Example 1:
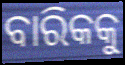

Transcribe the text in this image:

ବାରିକକୁ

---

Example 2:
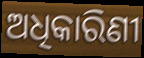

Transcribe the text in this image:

ଅଧିକାରିଣୀ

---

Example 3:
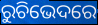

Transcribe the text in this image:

ରୁଚିଭେଦରେ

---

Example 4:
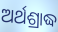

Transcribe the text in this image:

ଅର୍ଥଶ୍ରାଦ୍ଧ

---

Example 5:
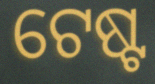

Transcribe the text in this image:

ଟେଷ୍ଟ